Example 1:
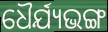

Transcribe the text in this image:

ଧୈର୍ଯ୍ୟଭଙ୍ଗ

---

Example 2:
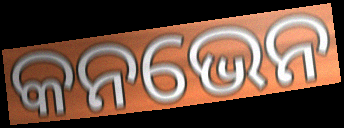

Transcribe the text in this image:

କନଭେନ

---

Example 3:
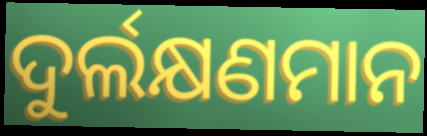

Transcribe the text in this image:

ଦୁର୍ଲକ୍ଷଣମାନ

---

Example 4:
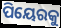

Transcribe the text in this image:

ପିୟେରକୁ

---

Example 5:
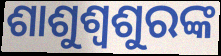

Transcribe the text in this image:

ଶାଶୁଶ୍ୱଶୁରଙ୍କ